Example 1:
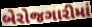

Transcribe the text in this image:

બેરોજગારીમાં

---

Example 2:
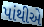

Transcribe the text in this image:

પાંથીએ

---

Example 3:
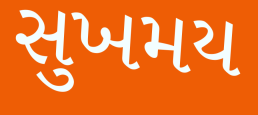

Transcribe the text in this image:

સુખમય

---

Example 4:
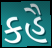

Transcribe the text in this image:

કહૈ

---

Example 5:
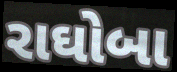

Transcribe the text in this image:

રાઘોબા